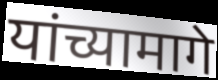
यांच्यामागे